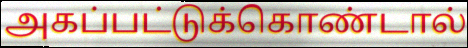
அகப்பட்டுக்கொண்டால்